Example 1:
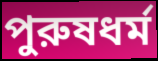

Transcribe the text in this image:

পুরুষধর্ম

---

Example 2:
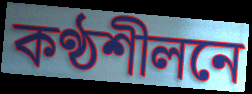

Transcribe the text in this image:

কণ্ঠশীলনে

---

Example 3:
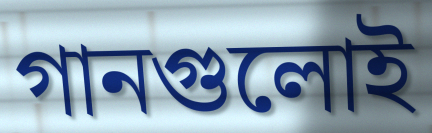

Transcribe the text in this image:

গানগুলোই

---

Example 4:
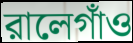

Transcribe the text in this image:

রালেগাঁও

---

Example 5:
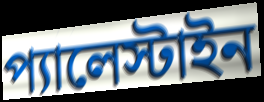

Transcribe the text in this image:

প্যালেস্টাইন